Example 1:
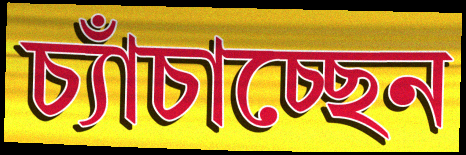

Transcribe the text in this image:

চ্যাঁচাচ্ছেন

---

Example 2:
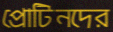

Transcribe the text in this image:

প্রোটিনদের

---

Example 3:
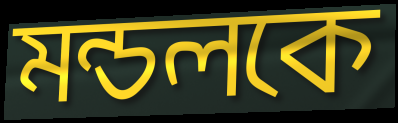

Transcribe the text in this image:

মন্ডলকে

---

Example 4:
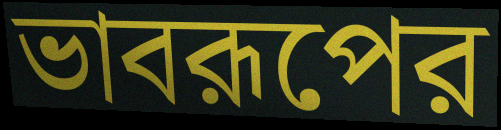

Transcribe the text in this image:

ভাবরূপের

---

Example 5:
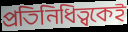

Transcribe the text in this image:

প্রতিনিধিত্বকেই